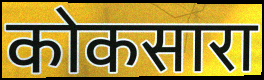
कोकसारा